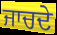
ਜਾਚਦੇ